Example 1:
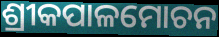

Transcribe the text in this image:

ଶ୍ରୀକପାଳମୋଚନ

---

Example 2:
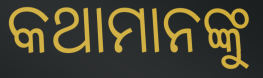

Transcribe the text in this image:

କଥାମାନଙ୍କୁ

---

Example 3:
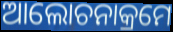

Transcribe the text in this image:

ଆଲୋଚନାକ୍ରମେ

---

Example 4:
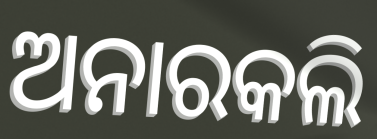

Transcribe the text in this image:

ଅନାରକଲି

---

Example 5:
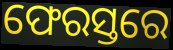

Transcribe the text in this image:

ଫେରସ୍ତରେ